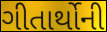
ગીતાર્થોની